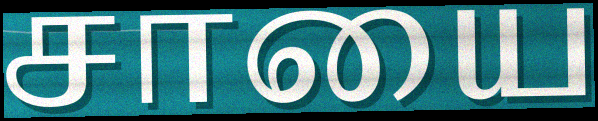
சாயை